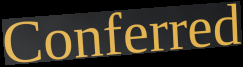
Conferred